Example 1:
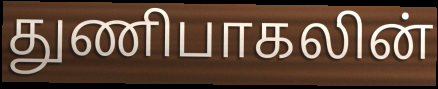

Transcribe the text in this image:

துணிபாகலின்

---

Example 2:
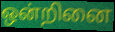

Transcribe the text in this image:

ஒன்றினை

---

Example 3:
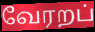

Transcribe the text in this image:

வேரறப்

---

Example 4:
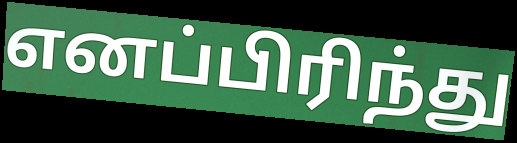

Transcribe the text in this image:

எனப்பிரிந்து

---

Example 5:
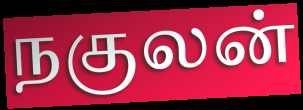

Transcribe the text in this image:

நகுலன்